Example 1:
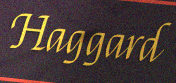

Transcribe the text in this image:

Haggard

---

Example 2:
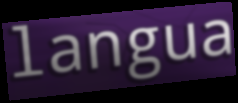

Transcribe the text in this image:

langua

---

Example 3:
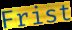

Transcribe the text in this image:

Frist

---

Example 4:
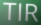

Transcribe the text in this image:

TIR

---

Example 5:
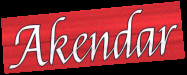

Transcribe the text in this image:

Akendar